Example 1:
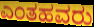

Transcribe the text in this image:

ಎಂತಹವರು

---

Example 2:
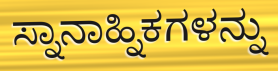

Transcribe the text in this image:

ಸ್ನಾನಾಹ್ನಿಕಗಳನ್ನು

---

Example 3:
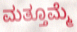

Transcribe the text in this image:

ಮತ್ತೂಮ್ಮೆ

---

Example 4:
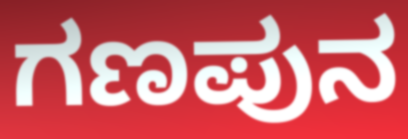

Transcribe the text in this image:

ಗಣಪುನ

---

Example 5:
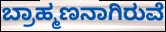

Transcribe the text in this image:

ಬ್ರಾಹ್ಮಣನಾಗಿರುವೆ